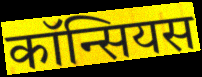
कॉन्सियस